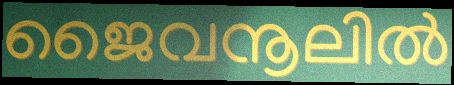
ജൈവനൂലിൽ